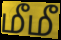
மீமீ